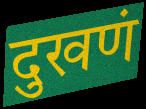
दुखणं